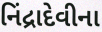
નિંદ્રાદેવીના